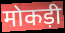
मोकड़ी